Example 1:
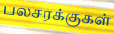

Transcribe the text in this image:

பலசரக்குகள்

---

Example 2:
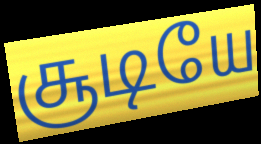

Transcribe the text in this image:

சூடியே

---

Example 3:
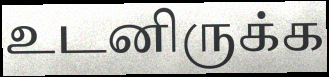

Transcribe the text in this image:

உடனிருக்க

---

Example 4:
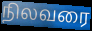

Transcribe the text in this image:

நிலவரை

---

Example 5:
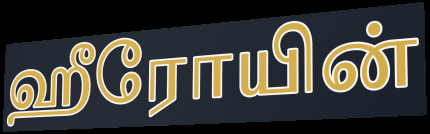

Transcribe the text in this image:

ஹீரோயின்